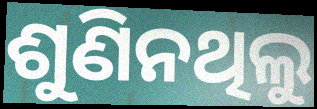
ଶୁଣିନଥିଲୁ